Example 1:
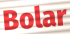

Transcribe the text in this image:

Bolar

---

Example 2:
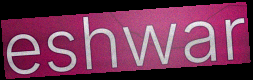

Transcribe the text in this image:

eshwar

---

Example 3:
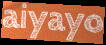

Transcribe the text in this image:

aiyayo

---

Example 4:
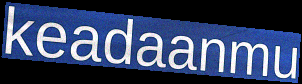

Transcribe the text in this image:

keadaanmu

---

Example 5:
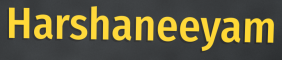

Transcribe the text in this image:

Harshaneeyam